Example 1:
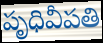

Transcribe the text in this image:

పృధివీపతి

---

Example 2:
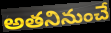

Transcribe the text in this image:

అతనినుంచే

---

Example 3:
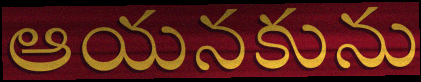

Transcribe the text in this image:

ఆయనకును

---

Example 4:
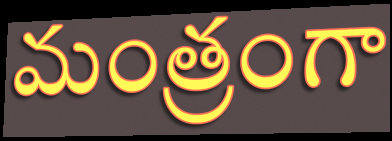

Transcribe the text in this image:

మంత్రంగా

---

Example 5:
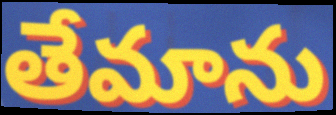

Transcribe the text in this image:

తేమాను